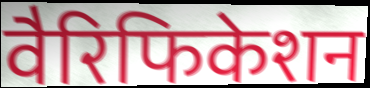
वैरिफिकेशन